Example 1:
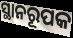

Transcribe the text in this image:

ସ୍ଥାନରୂପକ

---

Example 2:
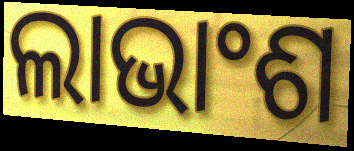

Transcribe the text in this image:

ଲାଭାଂଶ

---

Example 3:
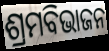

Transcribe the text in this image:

ଶ୍ରମବିଭାଜନ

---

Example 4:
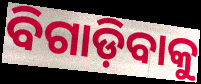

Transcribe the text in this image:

ବିଗାଡ଼ିବାକୁ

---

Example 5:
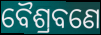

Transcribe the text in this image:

ବୈଶ୍ରବଣେ